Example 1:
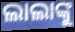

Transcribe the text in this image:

ଲାଲାଙ୍କୁ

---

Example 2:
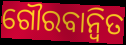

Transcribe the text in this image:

ଗୌରବାନ୍ୱିତ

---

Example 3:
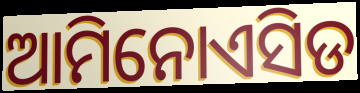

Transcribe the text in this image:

ଆମିନୋଏସିଡ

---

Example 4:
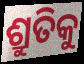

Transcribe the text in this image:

ଶ୍ରୁତିକୁ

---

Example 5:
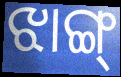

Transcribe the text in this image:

ଝାଙ୍ଗ୍